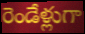
రెండేళ్లుగా